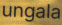
ungala